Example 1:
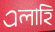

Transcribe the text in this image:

এলাহি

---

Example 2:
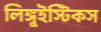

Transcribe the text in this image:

লিঙ্গুইস্টিকস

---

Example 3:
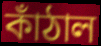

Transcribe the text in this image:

কাঁঠাল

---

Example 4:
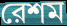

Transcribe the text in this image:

রেশম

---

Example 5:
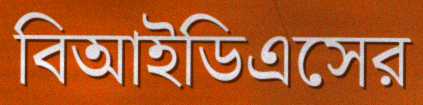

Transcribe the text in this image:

বিআইডিএসের